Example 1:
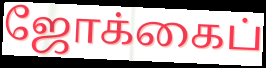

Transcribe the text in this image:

ஜோக்கைப்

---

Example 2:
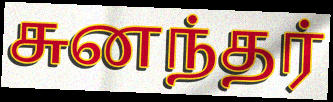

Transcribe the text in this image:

சுனந்தர்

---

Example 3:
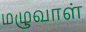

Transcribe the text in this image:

மழுவாள்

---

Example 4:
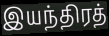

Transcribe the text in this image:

இயந்திரத்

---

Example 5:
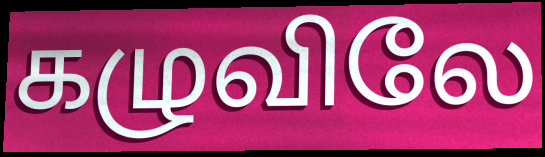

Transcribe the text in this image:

கழுவிலே